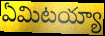
ఏమిటయ్యా